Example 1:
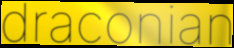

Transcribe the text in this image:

draconian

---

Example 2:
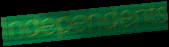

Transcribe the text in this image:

Independents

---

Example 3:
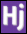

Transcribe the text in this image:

Hj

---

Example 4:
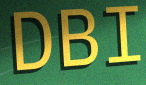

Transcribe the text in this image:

DBI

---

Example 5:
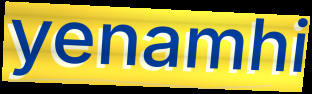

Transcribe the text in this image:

yenamhi